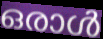
ഒരാൾ